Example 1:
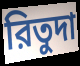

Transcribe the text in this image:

রিতুদা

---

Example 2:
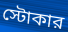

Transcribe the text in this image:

স্টোকার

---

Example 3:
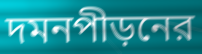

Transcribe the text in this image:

দমনপীড়নের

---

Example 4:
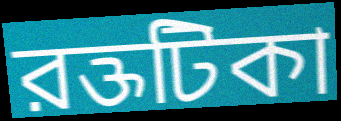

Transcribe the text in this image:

রক্তটিকা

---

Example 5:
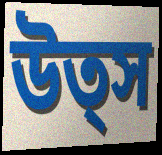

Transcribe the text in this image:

উত্স